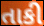
તાકી